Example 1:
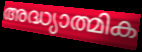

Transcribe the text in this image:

അദ്ധ്യാത്മിക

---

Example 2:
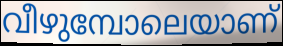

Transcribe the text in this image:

വീഴുമ്പോലെയാണ്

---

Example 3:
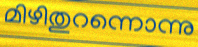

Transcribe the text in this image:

മിഴിതുറന്നൊന്നു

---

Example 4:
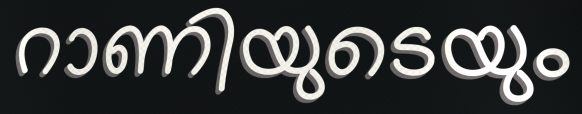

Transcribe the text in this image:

റാണിയുടെയും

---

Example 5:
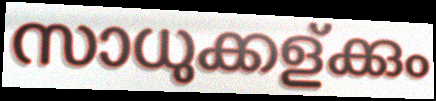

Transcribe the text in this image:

സാധുക്കള്ക്കും